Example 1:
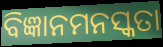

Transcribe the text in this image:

ବିଜ୍ଞାନମନସ୍କତା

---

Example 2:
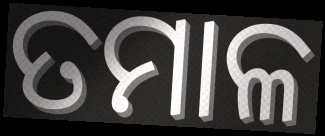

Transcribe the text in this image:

ତମାଳ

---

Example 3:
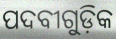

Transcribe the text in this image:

ପଦବୀଗୁଡ଼ିକ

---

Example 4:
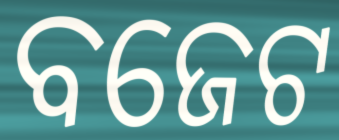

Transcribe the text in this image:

ବଜେଟ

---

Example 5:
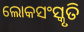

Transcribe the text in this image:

ଲୋକସଂସ୍କୃତି